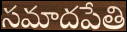
సమాదపేతి